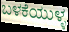
ಬಳಕೆಯುಳ್ಳ